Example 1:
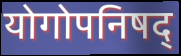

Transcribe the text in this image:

योगोपनिषद्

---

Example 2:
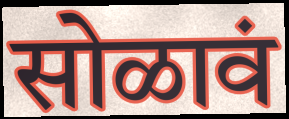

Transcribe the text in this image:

सोळावं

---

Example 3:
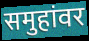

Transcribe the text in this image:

समुहांवर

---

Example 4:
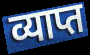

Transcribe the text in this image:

व्याप्त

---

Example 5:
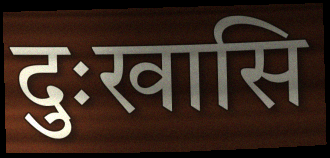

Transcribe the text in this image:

दुःखासि